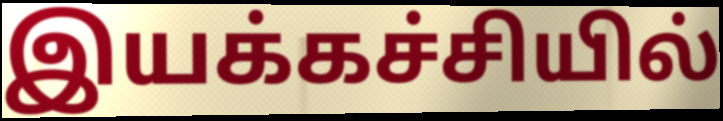
இயக்கச்சியில்